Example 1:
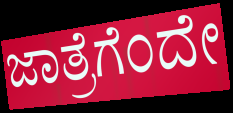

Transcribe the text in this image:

ಜಾತ್ರೆಗೆಂದೇ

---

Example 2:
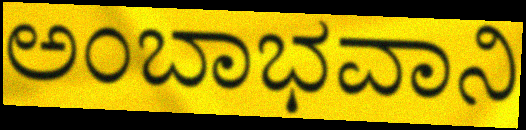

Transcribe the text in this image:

ಅಂಬಾಭವಾನಿ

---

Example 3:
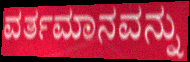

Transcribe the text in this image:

ವರ್ತಮಾನವನ್ನು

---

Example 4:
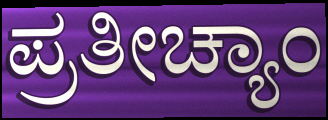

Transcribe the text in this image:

ಪ್ರತೀಚ್ಯಾಂ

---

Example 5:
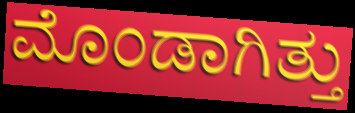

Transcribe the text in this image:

ಮೊಂಡಾಗಿತ್ತು